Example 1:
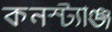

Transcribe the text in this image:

কনস্ট্যাঞ্জ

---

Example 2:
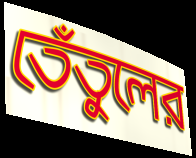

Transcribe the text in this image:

তেঁতুলের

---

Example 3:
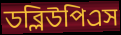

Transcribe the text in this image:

ডব্লিউপিএস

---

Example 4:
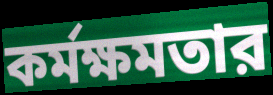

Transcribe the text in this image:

কর্মক্ষমতার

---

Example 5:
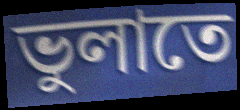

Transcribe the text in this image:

ভুলাতে